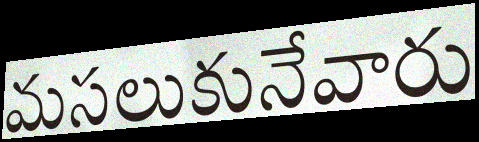
మసలుకునేవారు